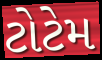
ટોટેમ